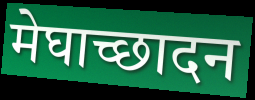
मेघाच्छादन